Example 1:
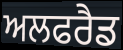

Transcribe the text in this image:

ਅਲਫਰੈਡ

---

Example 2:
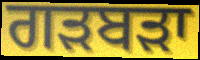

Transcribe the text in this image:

ਗੜਬੜਾ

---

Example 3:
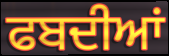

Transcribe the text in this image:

ਫਬਦੀਆਂ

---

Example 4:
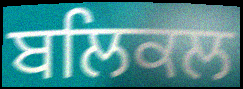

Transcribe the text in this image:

ਬਲਿਕਲ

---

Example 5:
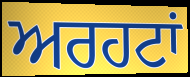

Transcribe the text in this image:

ਅਰਹਟਾਂ